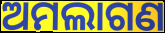
ଅମଲାଗଣ